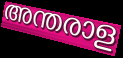
അന്തരാള